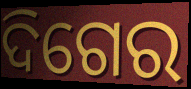
ଦିଗେର